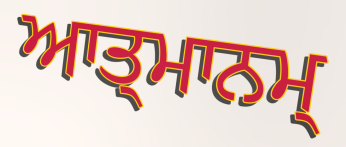
ਆਤ੍ਮਾਨਮ੍